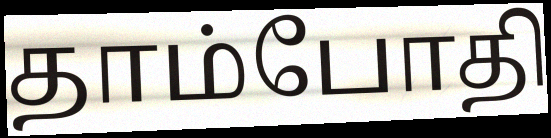
தாம்போதி